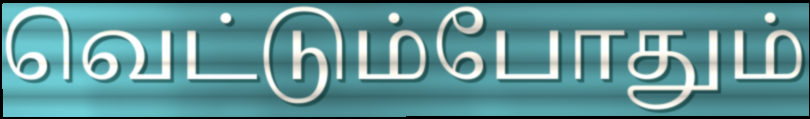
வெட்டும்போதும்